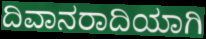
ದಿವಾನರಾದಿಯಾಗಿ